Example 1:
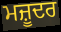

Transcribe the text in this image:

ਮਜ਼ੂਦਰ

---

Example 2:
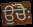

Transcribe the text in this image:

ਉੱਚੈਃ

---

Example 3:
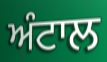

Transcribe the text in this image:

ਅੰਟਾਲ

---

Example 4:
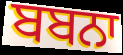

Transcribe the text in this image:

ਬਬਨਾ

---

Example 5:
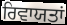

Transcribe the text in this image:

ਰਿਵਾਯਤਾਂ